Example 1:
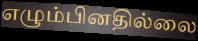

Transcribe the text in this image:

எழும்பினதில்லை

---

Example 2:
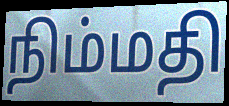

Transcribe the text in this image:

நிம்மதி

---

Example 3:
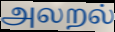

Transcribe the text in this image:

அலறல்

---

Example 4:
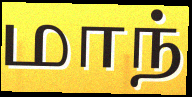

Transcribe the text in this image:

மாந்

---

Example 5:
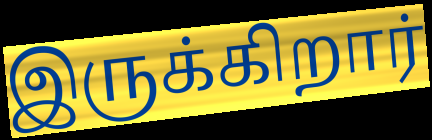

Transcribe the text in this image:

இருக்கிறார்